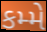
કમ્મે